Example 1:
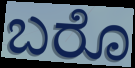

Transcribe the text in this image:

ಬರೊ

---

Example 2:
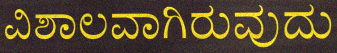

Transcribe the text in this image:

ವಿಶಾಲವಾಗಿರುವುದು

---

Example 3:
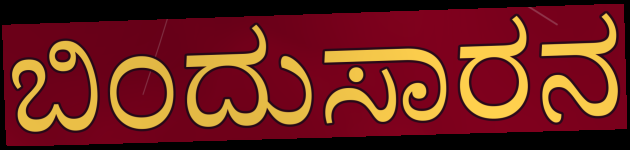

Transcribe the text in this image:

ಬಿಂದುಸಾರನ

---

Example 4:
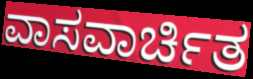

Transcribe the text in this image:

ವಾಸವಾರ್ಚಿತ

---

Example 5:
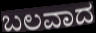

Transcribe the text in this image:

ಬಲವಾದ